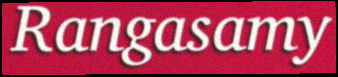
Rangasamy